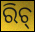
ରିଚ୍